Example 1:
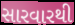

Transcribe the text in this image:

સારવારથી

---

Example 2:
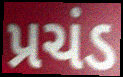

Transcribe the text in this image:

પ્રચંડ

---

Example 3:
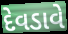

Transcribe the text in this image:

દેવડાવે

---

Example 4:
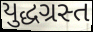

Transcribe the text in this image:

યુદ્ધગ્રસ્ત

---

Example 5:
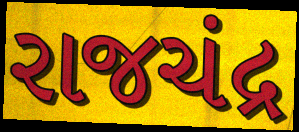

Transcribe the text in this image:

રાજચંદ્ર